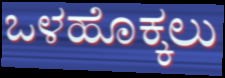
ಒಳಹೊಕ್ಕಲು